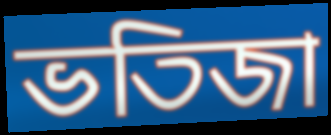
ভতিজা